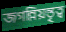
জগন্নিয়ন্তৃত্ব